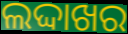
ଲଦ୍ଦାଖର